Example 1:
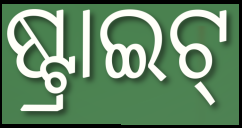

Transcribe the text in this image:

ଷ୍ଟ୍ରାଇଟ୍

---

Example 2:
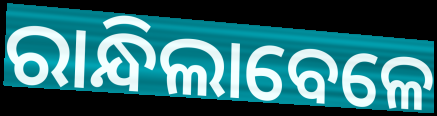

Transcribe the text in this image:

ରାନ୍ଧିଲାବେଳେ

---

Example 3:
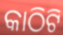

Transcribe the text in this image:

କାଠିଟି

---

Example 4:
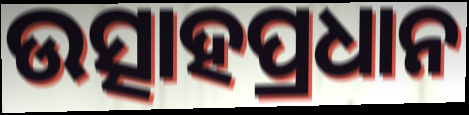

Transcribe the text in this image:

ଉତ୍ସାହପ୍ରଧାନ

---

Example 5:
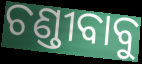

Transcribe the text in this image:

ଚଣ୍ଡୀବାବୁ